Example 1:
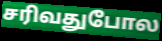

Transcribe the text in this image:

சரிவதுபோல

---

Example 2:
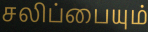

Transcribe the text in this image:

சலிப்பையும்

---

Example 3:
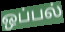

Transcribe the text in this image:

ஒப்பல்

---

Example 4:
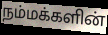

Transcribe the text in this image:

நம்மக்களின்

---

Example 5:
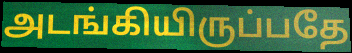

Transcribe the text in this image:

அடங்கியிருப்பதே